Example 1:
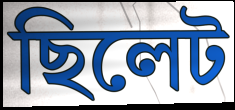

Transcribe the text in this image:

ছিলেট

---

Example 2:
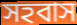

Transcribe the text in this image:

সহবাস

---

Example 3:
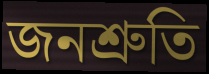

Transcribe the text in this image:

জনশ্ৰুতি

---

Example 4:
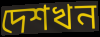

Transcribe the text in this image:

দেশখন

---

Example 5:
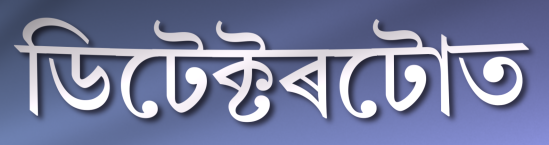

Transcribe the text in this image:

ডিটেক্টৰটোত